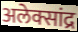
अलेक्सांद्र